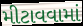
મીટાવવામાં